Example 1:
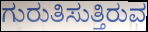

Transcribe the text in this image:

ಗುರುತಿಸುತ್ತಿರುವ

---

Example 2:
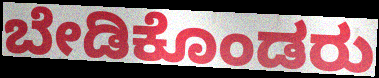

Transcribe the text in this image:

ಬೇಡಿಕೊಂಡರು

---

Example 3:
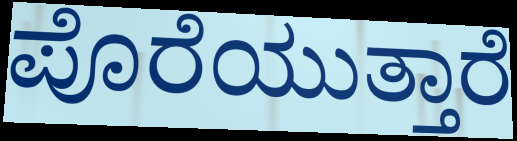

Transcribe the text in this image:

ಪೊರೆಯುತ್ತಾರೆ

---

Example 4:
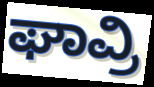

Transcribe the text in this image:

ಘಾವ್ರಿ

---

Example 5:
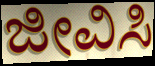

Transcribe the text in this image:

ಜೀವಿಸಿ